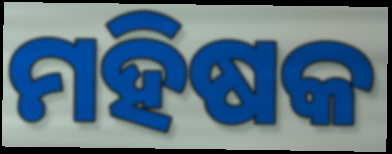
ମହିଷକ